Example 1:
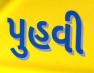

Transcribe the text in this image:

પુહવી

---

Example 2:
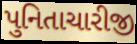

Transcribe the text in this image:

પુનિતાચારીજી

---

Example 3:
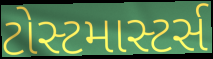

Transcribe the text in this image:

ટોસ્ટમાસ્ટર્સ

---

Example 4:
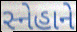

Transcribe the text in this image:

સ્નેહાને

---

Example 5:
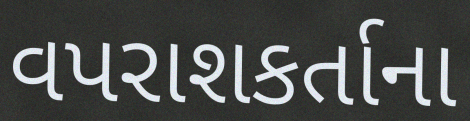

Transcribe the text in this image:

વપરાશકર્તાના